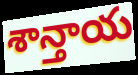
శాన్తాయ